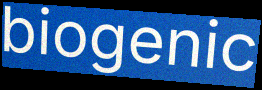
biogenic